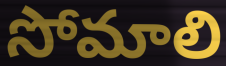
సోమాలి